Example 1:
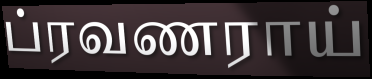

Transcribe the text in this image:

ப்ரவணராய்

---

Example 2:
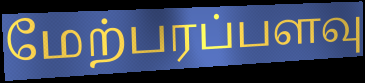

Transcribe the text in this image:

மேற்பரப்பளவு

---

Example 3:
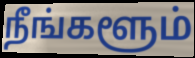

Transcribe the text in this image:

நீங்களூம்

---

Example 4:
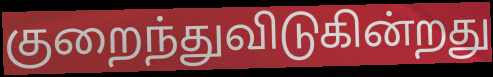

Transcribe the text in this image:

குறைந்துவிடுகின்றது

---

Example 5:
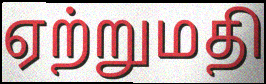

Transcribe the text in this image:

ஏற்றுமதி